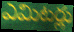
ఎమిటర్లు